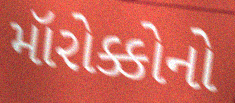
મૉરોક્કોનો